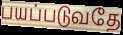
பயப்படுவதே